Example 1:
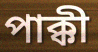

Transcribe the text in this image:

পাক্কী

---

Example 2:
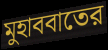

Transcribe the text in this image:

মুহাববাতের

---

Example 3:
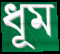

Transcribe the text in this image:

ধূম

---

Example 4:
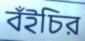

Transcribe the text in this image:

বঁইচির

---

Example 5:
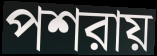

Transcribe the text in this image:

পশরায়